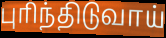
புரிந்திடுவாய்